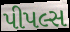
પીપલ્સ